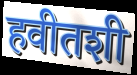
हवीतशी